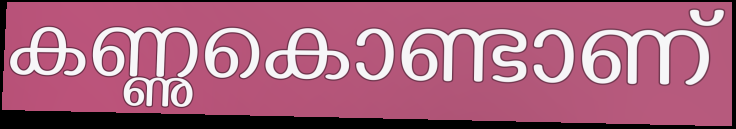
കണ്ണുകൊണ്ടാണ്